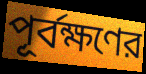
পূর্বক্ষণের